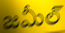
జమీల్